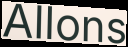
Allons